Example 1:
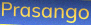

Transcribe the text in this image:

Prasango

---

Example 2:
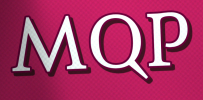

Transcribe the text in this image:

MQP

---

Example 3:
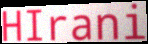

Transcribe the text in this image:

HIrani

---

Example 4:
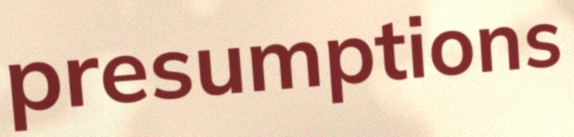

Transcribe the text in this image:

presumptions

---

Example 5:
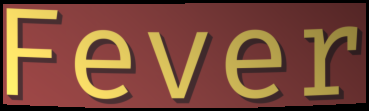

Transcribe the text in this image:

Fever